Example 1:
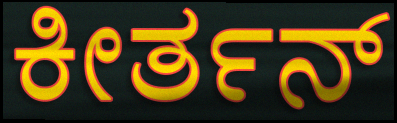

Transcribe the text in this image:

ಕೀರ್ತನ್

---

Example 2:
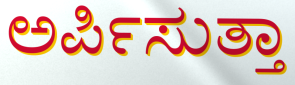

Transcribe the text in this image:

ಅರ್ಪಿಸುತ್ತಾ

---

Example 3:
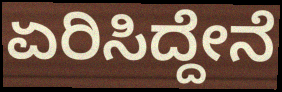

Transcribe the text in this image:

ಏರಿಸಿದ್ದೇನೆ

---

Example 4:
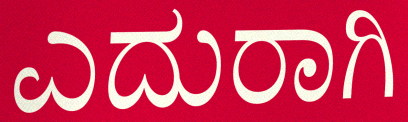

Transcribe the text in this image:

ಎದುರಾಗಿ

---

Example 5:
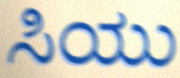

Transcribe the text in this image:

ಸಿಯು